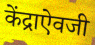
केंद्राऐवजी